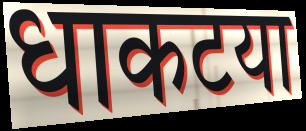
धाकटया